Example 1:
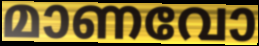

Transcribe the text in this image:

മാണവോ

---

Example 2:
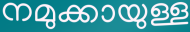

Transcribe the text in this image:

നമുക്കായുള്ള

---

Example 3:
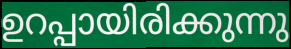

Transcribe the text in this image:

ഉറപ്പായിരിക്കുന്നു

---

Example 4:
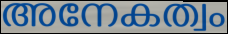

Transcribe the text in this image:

അനേകത്വം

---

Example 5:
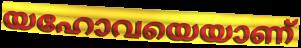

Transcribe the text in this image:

യഹോവയെയാണ്